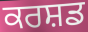
ਕਰਸ਼ਡ